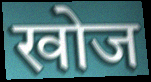
खोज